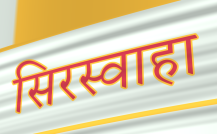
सिरस्वाहा